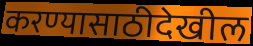
करण्यासाठीदेखील